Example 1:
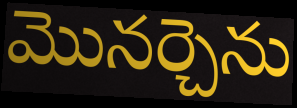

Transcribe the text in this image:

మొనర్చెను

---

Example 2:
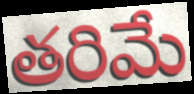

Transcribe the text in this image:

తరిమే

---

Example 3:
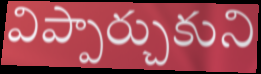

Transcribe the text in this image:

విప్పార్చుకుని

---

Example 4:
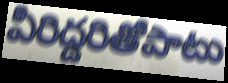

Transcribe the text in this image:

వీరిద్దరితోపాటు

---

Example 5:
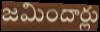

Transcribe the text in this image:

జమిందార్లు